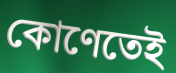
কোণেতেই